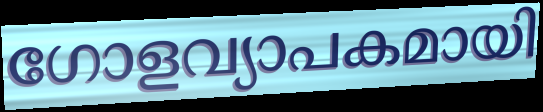
ഗോളവ്യാപകമായി